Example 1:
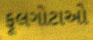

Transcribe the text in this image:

ફૂલગોટાઓ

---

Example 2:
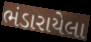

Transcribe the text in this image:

ભંડારાયેલા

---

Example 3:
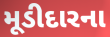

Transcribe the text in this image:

મૂડીદારના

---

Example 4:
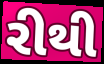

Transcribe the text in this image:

રીથી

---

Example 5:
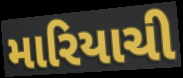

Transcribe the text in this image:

મારિયાચી